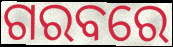
ଗରବରେ